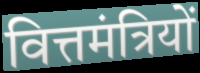
वित्तमंत्रियों